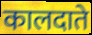
कालदाते